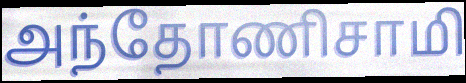
அந்தோணிசாமி